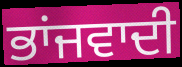
ਭਾਂਜਵਾਦੀ